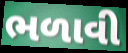
ભળાવી